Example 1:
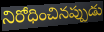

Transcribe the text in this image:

నిరోధించినప్పుడు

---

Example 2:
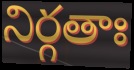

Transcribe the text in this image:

నిర్గతాః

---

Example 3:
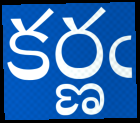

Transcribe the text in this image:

కర్ణఁ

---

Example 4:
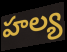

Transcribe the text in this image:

హల్య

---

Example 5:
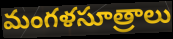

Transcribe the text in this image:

మంగళసూత్రాలు